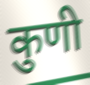
कुणी